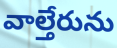
వాల్తేరును